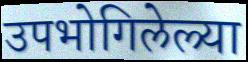
उपभोगिलेल्या